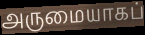
அருமையாகப்